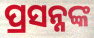
ପ୍ରସନ୍ନଙ୍କ